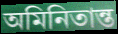
অমিনিতান্ত